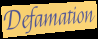
Defamation